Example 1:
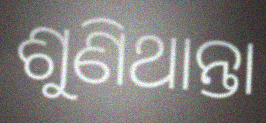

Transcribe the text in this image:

ଶୁଣିଥାନ୍ତା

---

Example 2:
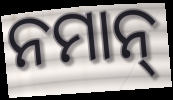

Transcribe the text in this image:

ନମାନ୍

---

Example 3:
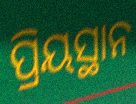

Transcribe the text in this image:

ପ୍ରିୟସ୍ଥାନ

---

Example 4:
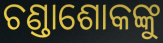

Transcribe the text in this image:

ଚଣ୍ଡାଶୋକଙ୍କୁ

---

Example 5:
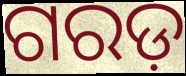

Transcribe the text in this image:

ଗରଡ଼